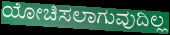
ಯೋಚಿಸಲಾಗುವುದಿಲ್ಲ